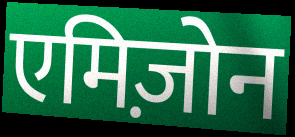
एमिज़ोन